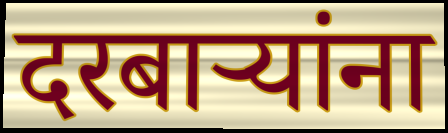
दरबाऱ्यांना